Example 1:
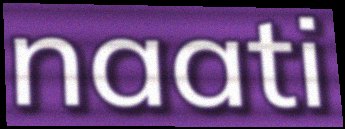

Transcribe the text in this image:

naati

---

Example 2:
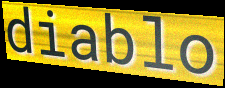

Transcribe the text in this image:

diablo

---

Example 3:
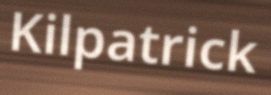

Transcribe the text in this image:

Kilpatrick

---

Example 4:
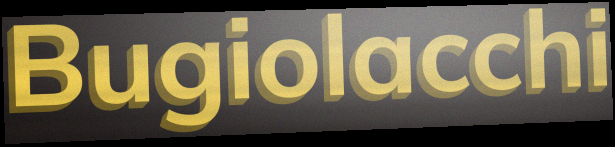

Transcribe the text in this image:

Bugiolacchi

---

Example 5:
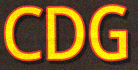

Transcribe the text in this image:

CDG